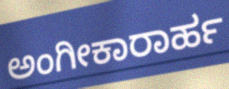
ಅಂಗೀಕಾರಾರ್ಹ